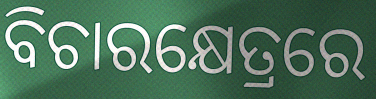
ବିଚାରକ୍ଷେତ୍ରରେ